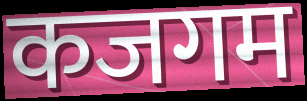
कजगम